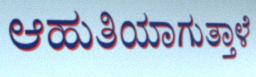
ಆಹುತಿಯಾಗುತ್ತಾಳೆ